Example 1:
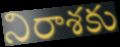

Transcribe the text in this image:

నిరాశకు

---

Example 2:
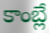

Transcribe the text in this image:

కాంబ్లే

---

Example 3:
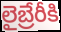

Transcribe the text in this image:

లైబ్రేరీకి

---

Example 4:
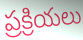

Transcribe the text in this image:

ప్రక్రియలు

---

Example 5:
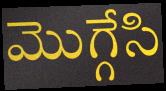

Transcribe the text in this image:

మొగ్గేసి